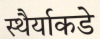
स्थैर्याकडे